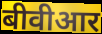
बीवीआर